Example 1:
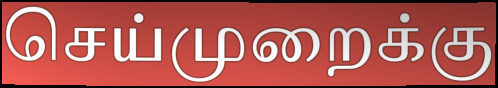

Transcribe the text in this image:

செய்முறைக்கு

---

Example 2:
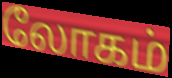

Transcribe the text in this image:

லோகம்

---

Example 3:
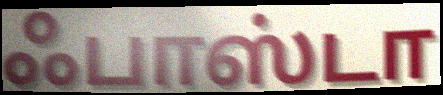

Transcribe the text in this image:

ஃபாஸ்டா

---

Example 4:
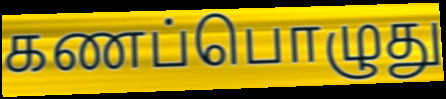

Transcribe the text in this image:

கணப்பொழுது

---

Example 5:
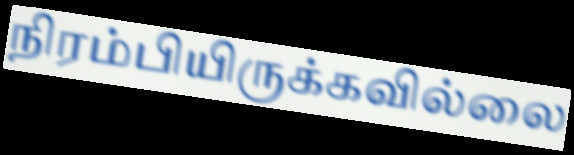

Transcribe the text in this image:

நிரம்பியிருக்கவில்லை